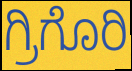
ಗ್ರಿಗೊರಿ